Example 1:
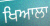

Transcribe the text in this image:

ਖਿਆਲਾ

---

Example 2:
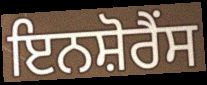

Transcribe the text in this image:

ਇਨਸ਼ੋਰੈਂਸ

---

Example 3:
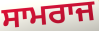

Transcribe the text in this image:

ਸਾਮਰਾਜ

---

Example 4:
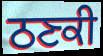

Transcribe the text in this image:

ਠਣਕੀ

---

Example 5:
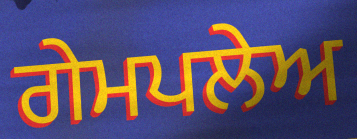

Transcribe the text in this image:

ਗੇਮਪਲੇਅ